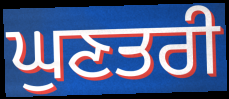
ਘੁਣਤਰੀ